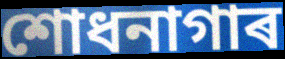
শোধনাগাৰ